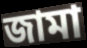
জামা